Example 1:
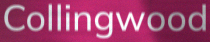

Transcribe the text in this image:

Collingwood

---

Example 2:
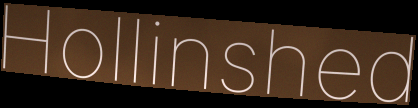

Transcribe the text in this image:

Hollinshed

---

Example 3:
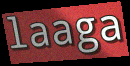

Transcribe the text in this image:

laaga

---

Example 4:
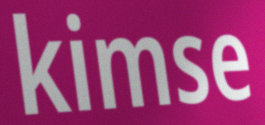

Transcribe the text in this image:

kimse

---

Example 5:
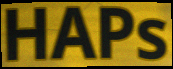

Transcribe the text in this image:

HAPs